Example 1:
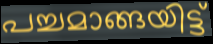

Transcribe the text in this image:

പച്ചമാങ്ങയിട്ട്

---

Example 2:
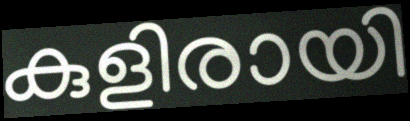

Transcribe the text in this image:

കുളിരായി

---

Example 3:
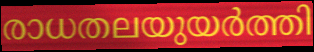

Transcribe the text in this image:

രാധതലയുയർത്തി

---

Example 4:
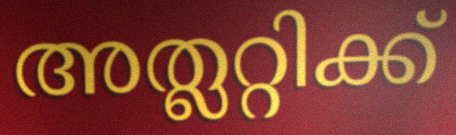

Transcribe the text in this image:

അത്ലറ്റിക്ക്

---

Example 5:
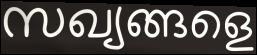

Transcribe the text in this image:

സഖ്യങ്ങളെ